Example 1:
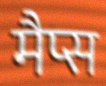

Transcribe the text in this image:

मैप्स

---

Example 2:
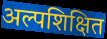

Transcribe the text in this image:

अल्पशिक्षित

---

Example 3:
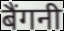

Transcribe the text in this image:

बैंगनी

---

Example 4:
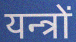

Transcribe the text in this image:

यन्त्रों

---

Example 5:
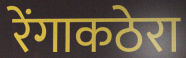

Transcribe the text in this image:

रेंगाकठेरा